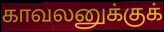
காவலனுக்குக்